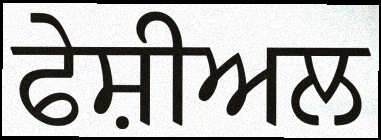
ਫੇਸ਼ੀਅਲ